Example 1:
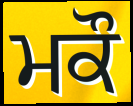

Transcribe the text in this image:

ਮਕੌ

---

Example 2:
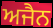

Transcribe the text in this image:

ਅਜੈਨ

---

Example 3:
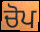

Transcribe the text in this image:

ਚੋਪ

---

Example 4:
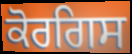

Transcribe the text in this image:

ਕੋਰਗਿਸ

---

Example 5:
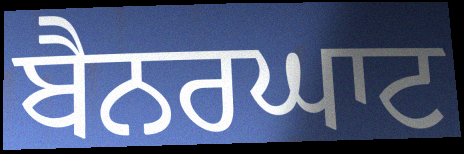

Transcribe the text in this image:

ਬੈਨਰਘਾਟ